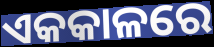
ଏକକାଳରେ